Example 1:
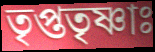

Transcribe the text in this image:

তৃপ্ততৃষ্ণাঃ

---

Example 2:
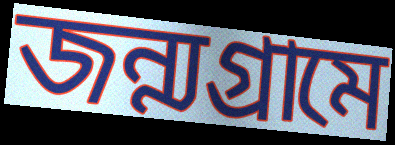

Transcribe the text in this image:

জন্মগ্রামে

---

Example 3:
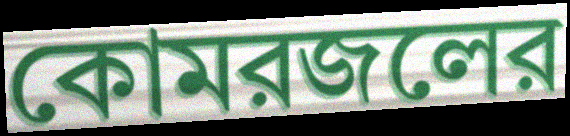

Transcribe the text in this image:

কোমরজলের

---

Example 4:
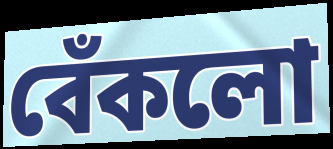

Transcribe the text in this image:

বেঁকলো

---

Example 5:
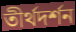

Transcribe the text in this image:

তীর্থদর্শন